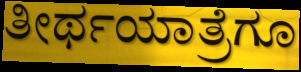
ತೀರ್ಥಯಾತ್ರೆಗೂ